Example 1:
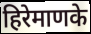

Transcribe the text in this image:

हिरेमाणके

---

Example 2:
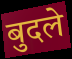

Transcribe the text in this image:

बुदले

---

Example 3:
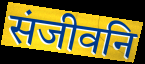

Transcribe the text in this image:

संजीवनि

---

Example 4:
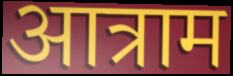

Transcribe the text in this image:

आत्राम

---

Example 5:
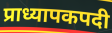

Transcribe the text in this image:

प्राध्यापकपदी